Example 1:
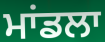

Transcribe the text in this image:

ਮਾਂਡਲਾ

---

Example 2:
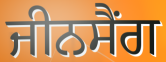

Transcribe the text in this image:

ਜੀਨਸੈਂਗ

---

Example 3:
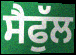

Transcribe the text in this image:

ਸੈਫੁੱਲ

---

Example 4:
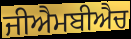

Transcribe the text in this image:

ਜੀਐਮਬੀਐਚ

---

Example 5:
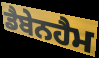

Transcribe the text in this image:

ਡੈਬੇਨਹੈਮ